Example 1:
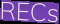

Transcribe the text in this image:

RECs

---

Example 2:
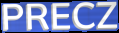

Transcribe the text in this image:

PRECZ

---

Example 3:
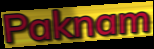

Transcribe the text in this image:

Paknam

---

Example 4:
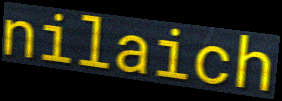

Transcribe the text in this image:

nilaich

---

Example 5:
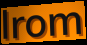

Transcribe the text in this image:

Irom